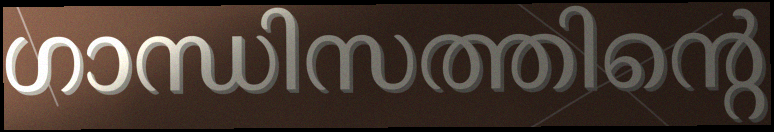
ഗാന്ധിസത്തിന്റെ